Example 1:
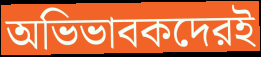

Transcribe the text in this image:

অভিভাবকদেরই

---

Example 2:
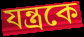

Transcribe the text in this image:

যন্ত্রকে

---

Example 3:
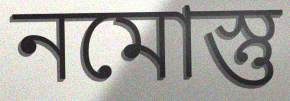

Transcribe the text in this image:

নমোস্তু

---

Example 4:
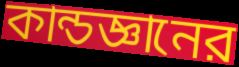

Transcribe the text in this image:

কান্ডজ্ঞানের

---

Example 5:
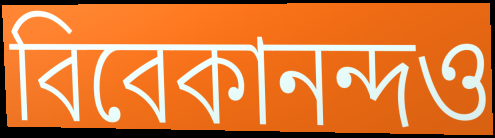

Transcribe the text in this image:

বিবেকানন্দও